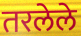
तरलेले